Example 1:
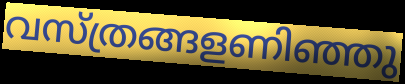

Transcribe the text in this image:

വസ്ത്രങ്ങളണിഞ്ഞു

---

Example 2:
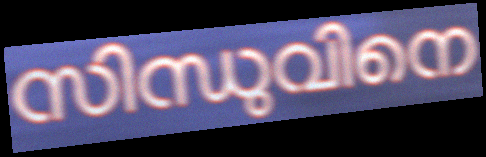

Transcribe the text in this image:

സിന്ധുവിനെ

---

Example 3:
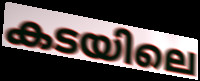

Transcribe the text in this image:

കടയിലെ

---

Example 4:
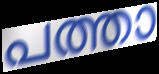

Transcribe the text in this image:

പത്താ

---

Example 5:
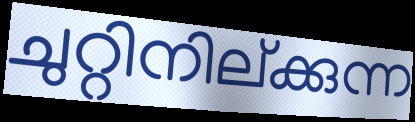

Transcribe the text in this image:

ചുറ്റിനില്ക്കുന്ന